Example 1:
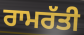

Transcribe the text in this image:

ਰਾਮਰੱਤੀ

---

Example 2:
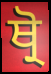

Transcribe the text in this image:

ਥ੍ਰੋ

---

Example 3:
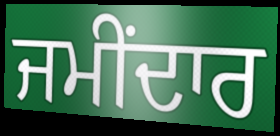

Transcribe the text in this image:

ਜਮੀਂਦਾਰ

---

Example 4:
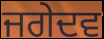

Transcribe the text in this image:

ਜਗੇਦਵ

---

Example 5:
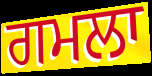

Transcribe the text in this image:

ਗਮਲਾ